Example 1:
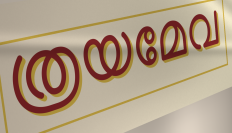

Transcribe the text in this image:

ത്രയമേവ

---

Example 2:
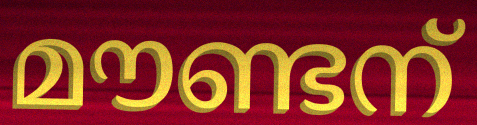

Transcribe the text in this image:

മൗണ്ടന്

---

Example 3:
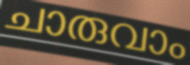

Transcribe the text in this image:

ചാരുവാം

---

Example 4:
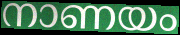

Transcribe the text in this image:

നാണയം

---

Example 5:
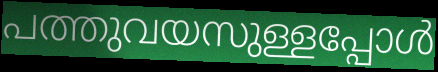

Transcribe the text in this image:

പത്തുവയസുള്ളപ്പോൾ